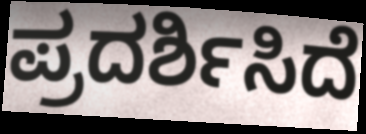
ಪ್ರದರ್ಶಿಸಿದೆ